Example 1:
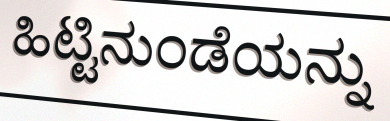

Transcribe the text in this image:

ಹಿಟ್ಟಿನುಂಡೆಯನ್ನು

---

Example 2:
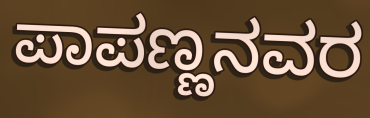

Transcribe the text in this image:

ಪಾಪಣ್ಣನವರ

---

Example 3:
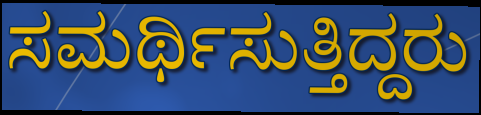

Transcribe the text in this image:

ಸಮರ್ಥಿಸುತ್ತಿದ್ದರು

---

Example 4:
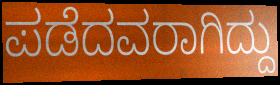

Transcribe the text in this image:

ಪಡೆದವರಾಗಿದ್ದು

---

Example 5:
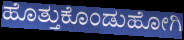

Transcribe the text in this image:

ಹೊತ್ತುಕೊಂಡುಹೋಗಿ